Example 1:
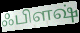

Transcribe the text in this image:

ஃபிளஷ்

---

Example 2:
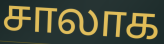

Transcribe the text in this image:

சாலாக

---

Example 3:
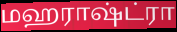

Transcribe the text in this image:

மஹராஷ்ட்ரா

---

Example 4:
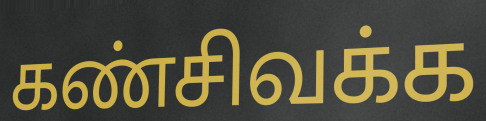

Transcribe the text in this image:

கண்சிவக்க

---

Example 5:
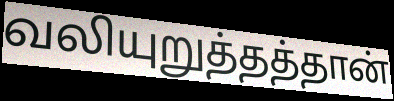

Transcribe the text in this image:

வலியுறுத்தத்தான்